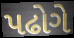
પઢોગે